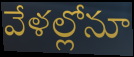
వేళల్లోనూ